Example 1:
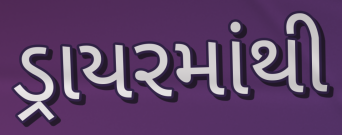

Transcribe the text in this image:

ડ્રાયરમાંથી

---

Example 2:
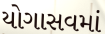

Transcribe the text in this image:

યોગાસવમાં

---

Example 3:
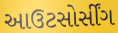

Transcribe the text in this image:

આઉટસોર્સીંગ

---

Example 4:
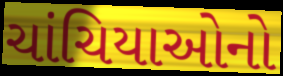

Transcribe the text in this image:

ચાંચિયાઓનો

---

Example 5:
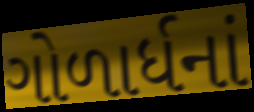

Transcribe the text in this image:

ગોળાર્ધનાં